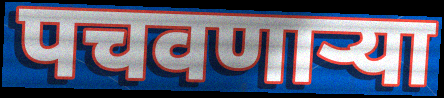
पचवणाऱ्या